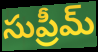
సుప్రీమ్